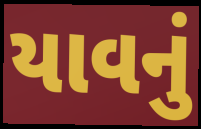
યાવનું